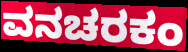
ವನಚರಕಂ